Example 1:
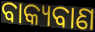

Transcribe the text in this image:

ବାକ୍ୟବାଣ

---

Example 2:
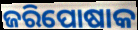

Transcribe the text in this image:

ଜରିପୋଷାକ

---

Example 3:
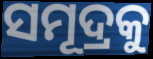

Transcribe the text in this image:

ସମୂଦ୍ରକୁ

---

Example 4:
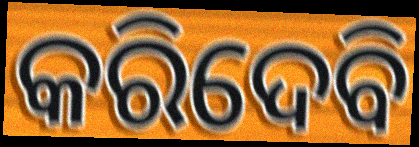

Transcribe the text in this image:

କରିଦେବି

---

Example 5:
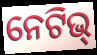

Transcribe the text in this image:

ନେଟିଭ୍